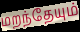
மறந்தேயும்